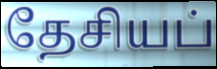
தேசியப்